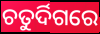
ଚତୁର୍ଦିଗରେ